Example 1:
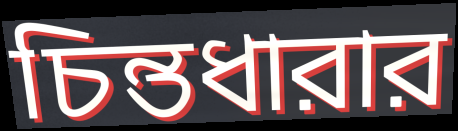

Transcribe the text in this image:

চিন্তধারার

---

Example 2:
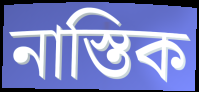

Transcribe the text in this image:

নাস্তিক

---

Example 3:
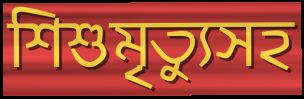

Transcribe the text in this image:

শিশুমৃত্যুসহ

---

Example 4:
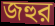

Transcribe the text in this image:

জহুর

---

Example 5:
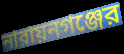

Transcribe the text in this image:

নারায়নগঞ্জের